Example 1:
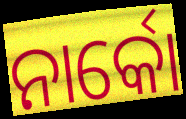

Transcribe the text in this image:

ନାର୍କୋ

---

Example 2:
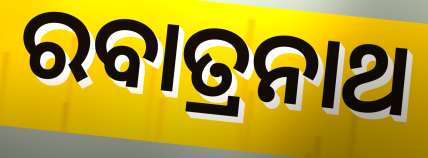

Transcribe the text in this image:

ରବାତ୍ରନାଥ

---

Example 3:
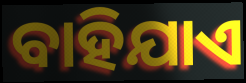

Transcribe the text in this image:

ବାହିଯାଏ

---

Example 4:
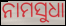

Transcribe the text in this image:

ନାମସୁଧା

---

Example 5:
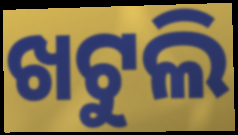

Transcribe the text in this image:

ଖଟୁଲି